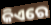
କିଏରେ